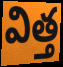
విత్త